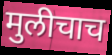
मुलीचाच